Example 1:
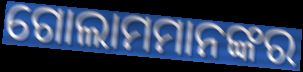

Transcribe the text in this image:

ଗୋଲାମମାନଙ୍କର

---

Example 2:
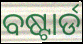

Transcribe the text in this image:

ବଷ୍ଟାର୍ଡ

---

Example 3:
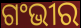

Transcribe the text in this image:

ଗଂଭୀର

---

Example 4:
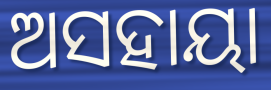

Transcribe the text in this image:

ଅସହାୟା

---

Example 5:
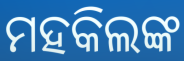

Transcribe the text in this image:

ମହକିଲଙ୍କ